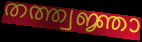
തത്ത്വജ്ഞാ